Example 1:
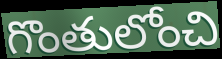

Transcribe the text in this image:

గొంతులోంచి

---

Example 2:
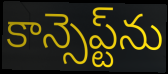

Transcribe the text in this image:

కాన్సెప్ట్‌ను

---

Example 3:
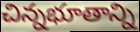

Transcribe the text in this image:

చిన్నభూతాన్ని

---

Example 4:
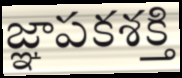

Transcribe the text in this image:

జ్ఞాపకశక్తి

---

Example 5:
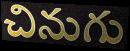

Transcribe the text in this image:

చినుగు